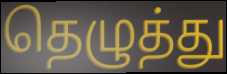
தெழுத்து